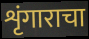
शृंगाराचा